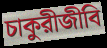
চাকুরীজীবি